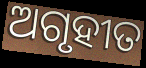
ଅଗୃହୀତ